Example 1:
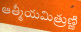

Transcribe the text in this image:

ఆత్మీయమిత్రుణ్ణి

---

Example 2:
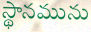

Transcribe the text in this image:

స్థానమును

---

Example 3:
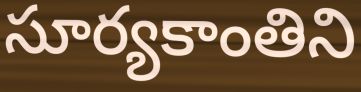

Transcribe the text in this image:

సూర్యకాంతిని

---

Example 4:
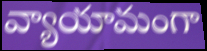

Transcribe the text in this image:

వ్యాయామంగా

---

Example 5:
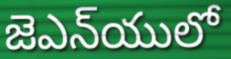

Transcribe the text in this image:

జెఎన్‌యులో